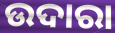
ଉଦାରା